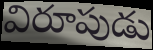
విరూపుడు